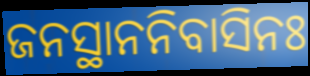
ଜନସ୍ଥାନନିବାସିନଃ